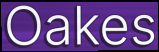
Oakes